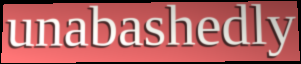
unabashedly